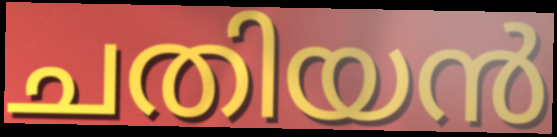
ചതിയൻ